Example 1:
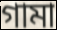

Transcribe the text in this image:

গামা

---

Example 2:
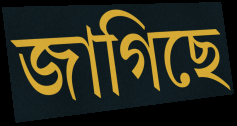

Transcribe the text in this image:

জাগিছে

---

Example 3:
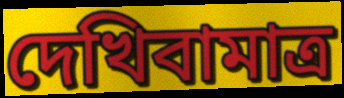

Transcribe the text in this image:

দেখিবামাত্র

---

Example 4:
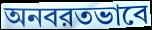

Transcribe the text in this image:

অনবরতভাবে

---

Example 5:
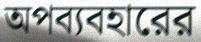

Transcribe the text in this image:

অপব্যবহারের